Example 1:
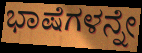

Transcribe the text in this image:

ಭಾಷೆಗಳನ್ನೇ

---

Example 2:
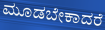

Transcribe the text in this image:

ಮೂಡಬೇಕಾದರೆ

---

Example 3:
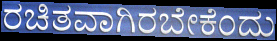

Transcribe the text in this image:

ರಚಿತವಾಗಿರಬೇಕೆಂದು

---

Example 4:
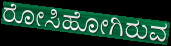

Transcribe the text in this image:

ರೋಸಿಹೋಗಿರುವ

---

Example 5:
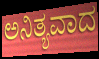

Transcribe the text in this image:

ಅನಿತ್ಯವಾದ